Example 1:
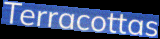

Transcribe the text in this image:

Terracottas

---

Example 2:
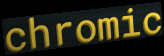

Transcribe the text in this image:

chromic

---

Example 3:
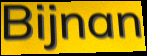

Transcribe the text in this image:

Bijnan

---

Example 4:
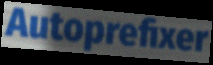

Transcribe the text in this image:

Autoprefixer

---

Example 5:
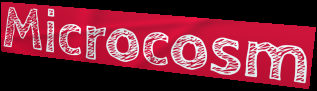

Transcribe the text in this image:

Microcosm